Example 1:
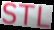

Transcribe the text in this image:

STL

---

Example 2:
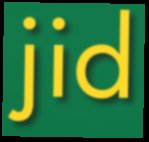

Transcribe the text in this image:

jid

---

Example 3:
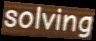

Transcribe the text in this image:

solving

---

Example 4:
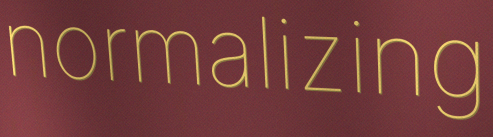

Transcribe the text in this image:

normalizing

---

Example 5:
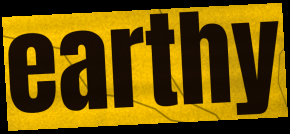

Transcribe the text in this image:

earthy